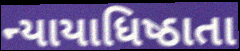
ન્યાયાધિષ્ઠાતા